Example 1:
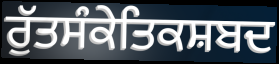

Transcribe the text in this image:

ਰੁੱਤਸੰਕੇਤਿਕਸ਼ਬਦ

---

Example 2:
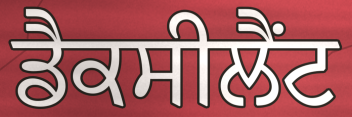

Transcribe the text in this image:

ਡੈਕਸੀਲੈਂਟ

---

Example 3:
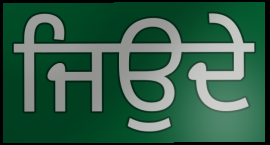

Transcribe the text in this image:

ਜਿਉਦੇ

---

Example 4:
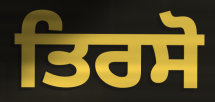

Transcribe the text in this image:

ਤਿਰਸੋ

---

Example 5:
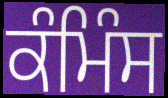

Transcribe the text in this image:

ਕੰਮਿੰਸ